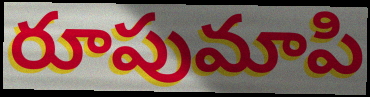
రూపుమాపి